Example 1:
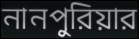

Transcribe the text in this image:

নানপুরিয়ার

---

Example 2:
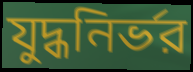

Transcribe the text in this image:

যুদ্ধনির্ভর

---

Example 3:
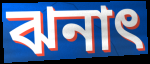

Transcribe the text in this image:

ঝনাৎ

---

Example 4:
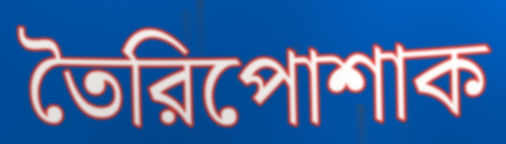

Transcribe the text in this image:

তৈরিপোশাক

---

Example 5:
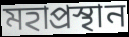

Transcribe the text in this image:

মহাপ্রস্থান